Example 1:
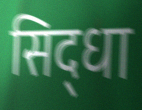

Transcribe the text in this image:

सिद्धा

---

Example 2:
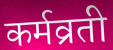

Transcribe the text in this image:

कर्मव्रती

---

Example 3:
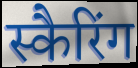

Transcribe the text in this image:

स्कैरिंग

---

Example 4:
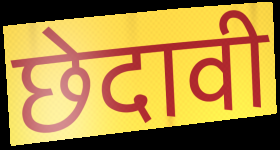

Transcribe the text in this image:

छेदावी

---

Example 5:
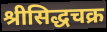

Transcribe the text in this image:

श्रीसिद्धचक्र